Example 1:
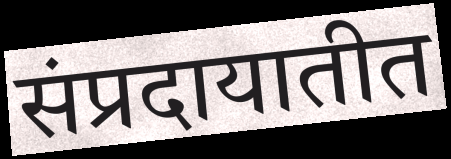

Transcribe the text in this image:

संप्रदायातीत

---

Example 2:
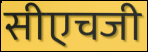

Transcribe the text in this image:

सीएचजी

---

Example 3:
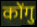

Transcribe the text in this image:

कोंगु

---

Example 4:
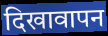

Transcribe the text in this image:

दिखावापन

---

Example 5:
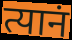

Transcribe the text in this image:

त्यानं